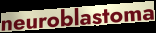
neuroblastoma